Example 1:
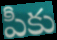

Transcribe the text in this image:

పీకు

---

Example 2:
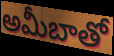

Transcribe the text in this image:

అమీబాతో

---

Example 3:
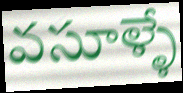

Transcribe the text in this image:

వసూళ్ళే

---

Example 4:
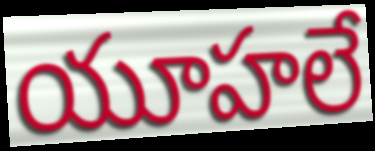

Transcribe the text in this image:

యూహలే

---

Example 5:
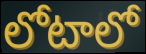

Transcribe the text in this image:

లోటాలో